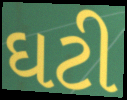
ઘટી